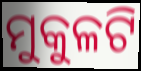
ମୁକୁଳଟି